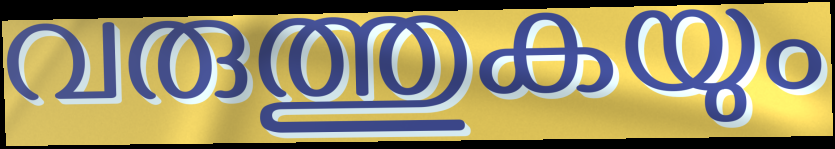
വരുത്തുകയും